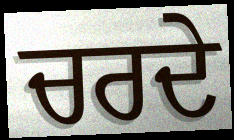
ਚਰਦੇ